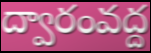
ద్వారంవద్ద